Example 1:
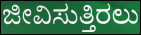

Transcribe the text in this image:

ಜೀವಿಸುತ್ತಿರಲು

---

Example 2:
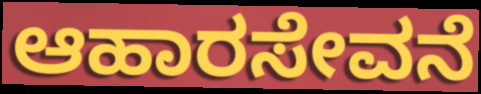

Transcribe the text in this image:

ಆಹಾರಸೇವನೆ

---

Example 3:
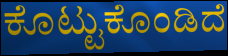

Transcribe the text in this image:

ಕೊಟ್ಟುಕೊಂಡಿದೆ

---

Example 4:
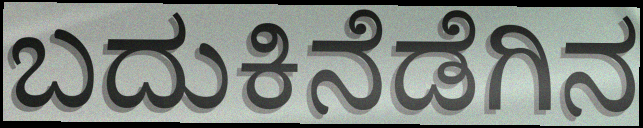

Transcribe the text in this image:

ಬದುಕಿನೆಡೆಗಿನ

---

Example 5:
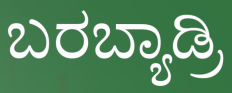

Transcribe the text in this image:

ಬರಬ್ಯಾಡ್ರಿ